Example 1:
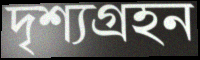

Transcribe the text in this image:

দৃশ্যগ্ৰহন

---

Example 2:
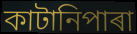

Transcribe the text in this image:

কাটানিপাৰা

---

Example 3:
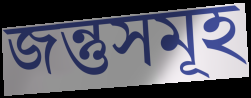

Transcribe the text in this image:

জন্তুসমূহ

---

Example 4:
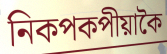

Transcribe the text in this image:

নিকপকপীয়াকৈ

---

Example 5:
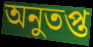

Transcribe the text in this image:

অনুতপ্ত